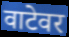
वाटेवर